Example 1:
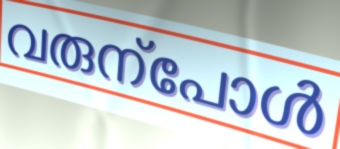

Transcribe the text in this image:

വരുന്പോൾ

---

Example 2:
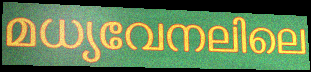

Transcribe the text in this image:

മധ്യവേനലിലെ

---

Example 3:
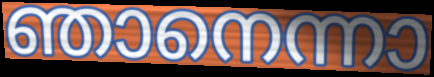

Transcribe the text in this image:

ഞാനെന്നാ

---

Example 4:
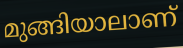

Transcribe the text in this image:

മുങ്ങിയാലാണ്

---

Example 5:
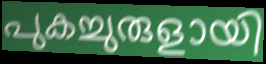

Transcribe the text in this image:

പുകച്ചുരുളായി